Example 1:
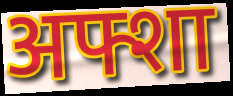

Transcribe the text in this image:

अफ्शा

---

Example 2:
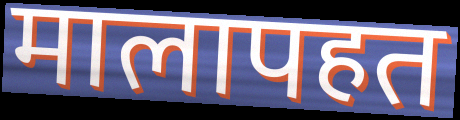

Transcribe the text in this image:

मालापहत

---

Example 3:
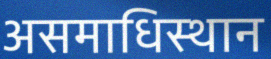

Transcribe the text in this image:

असमाधिस्थान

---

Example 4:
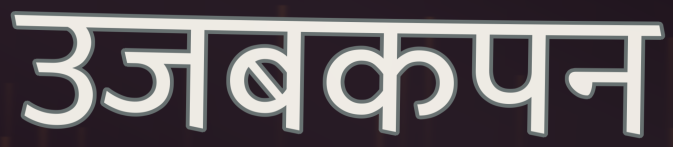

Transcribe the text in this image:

उजबकपन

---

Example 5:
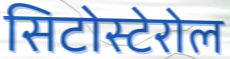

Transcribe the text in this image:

सिटोस्टेरोल